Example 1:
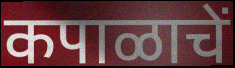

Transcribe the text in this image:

कपाळाचें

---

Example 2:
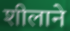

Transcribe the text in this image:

शीलाने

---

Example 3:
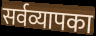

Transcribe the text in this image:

सर्वव्यापका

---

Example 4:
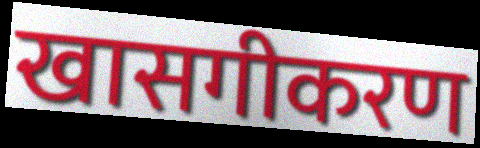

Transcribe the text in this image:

खासगीकरण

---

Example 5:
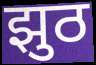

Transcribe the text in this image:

झुठ